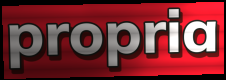
propria